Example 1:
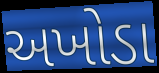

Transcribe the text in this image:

અખોડા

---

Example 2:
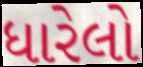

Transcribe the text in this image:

ધારેલો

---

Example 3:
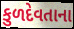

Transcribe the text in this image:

કુળદેવતાના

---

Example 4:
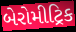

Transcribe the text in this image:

બેરોમીટ્રિક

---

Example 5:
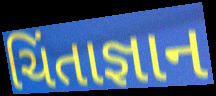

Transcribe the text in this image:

ચિંતાજ્ઞાન